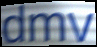
dmv